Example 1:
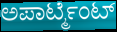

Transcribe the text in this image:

ಅಪಾರ್ಟ್ಮೆಂಟ್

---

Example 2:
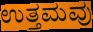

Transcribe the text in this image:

ಉತ್ತಮವು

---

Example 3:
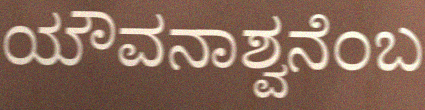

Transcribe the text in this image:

ಯೌವನಾಶ್ವನೆಂಬ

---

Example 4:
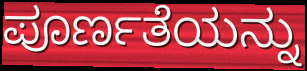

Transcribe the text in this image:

ಪೂರ್ಣತೆಯನ್ನು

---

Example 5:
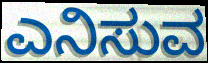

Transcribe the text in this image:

ಎನಿಸುವ